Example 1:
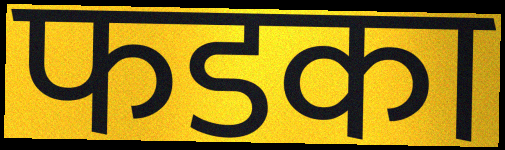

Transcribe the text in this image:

फडका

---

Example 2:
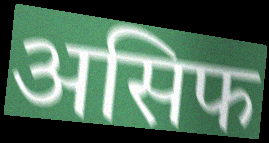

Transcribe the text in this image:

असिफ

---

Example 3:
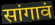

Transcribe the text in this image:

सांगावं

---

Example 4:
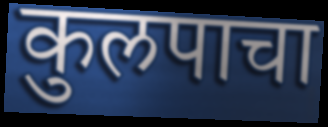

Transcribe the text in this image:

कुलपाचा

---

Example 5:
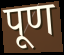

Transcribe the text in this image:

पूण